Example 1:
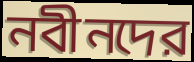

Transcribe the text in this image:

নবীনদের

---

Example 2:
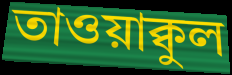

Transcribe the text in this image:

তাওয়াক্বুল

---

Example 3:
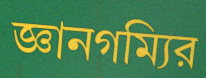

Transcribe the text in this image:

জ্ঞানগম্যির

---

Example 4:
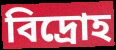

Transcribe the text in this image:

বিদ্রোহ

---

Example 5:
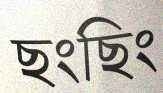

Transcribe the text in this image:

ছংছিং